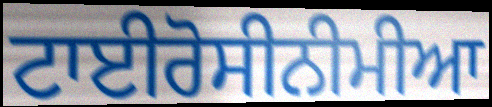
ਟਾਈਰੋਸੀਨੀਮੀਆ